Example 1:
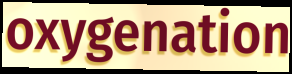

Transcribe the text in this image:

oxygenation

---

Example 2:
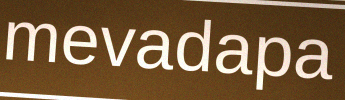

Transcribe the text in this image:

mevadapa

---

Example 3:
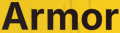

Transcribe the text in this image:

Armor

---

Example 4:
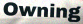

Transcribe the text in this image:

Owning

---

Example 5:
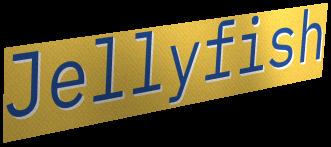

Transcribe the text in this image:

Jellyfish